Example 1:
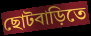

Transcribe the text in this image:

ছোটবাড়িতে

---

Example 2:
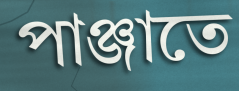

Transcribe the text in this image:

পাঞ্জাতে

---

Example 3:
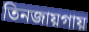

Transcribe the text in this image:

তিনজায়গায়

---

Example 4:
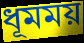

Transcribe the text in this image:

ধূমময়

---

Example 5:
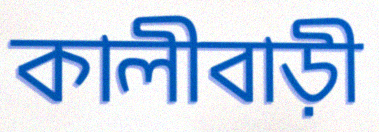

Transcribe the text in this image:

কালীবাড়ী